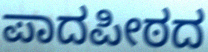
ಪಾದಪೀಠದ